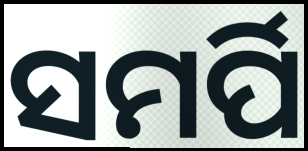
ସମର୍ପି